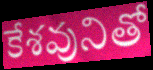
కేశవునితో